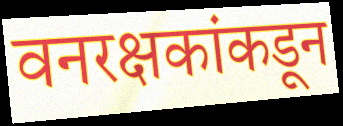
वनरक्षकांकडून